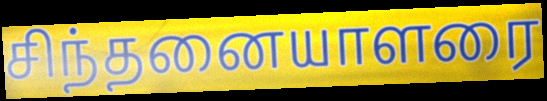
சிந்தனையாளரை